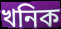
খনিক